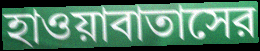
হাওয়াবাতাসের